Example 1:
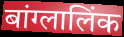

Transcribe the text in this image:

बांग्लालिंक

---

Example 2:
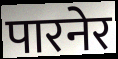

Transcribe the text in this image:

पारनेर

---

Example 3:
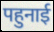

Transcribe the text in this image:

पहुनाई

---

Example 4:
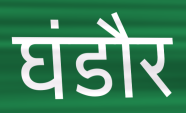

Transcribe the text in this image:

घंडौर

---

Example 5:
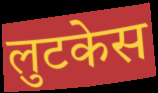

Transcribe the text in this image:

लुटकेस